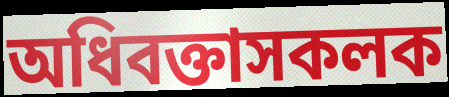
অধিবক্তাসকলক